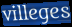
villeges